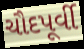
ચૌદપૂર્વી